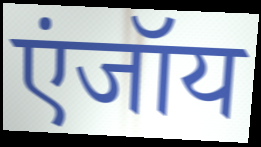
एंजॉय